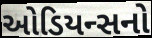
ઓડિયન્સનો